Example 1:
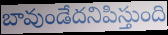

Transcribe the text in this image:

బావుండేదనిపిస్తుంది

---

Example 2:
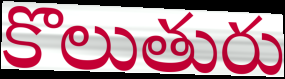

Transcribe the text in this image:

కొలుతురు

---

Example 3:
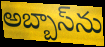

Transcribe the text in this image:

అబ్బాస్‌ను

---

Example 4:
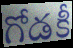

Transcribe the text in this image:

గోడకీ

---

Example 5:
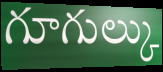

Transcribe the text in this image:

గూగుల్కు